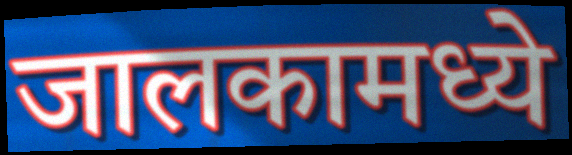
जालकामध्ये